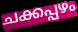
ചക്കപ്പഴം